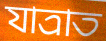
যাত্ৰাত